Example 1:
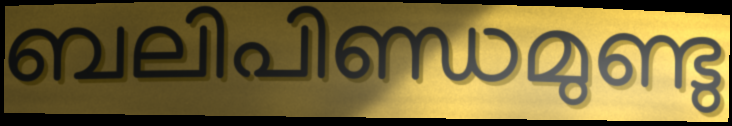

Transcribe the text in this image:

ബലിപിണ്ഡമുണ്ടു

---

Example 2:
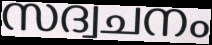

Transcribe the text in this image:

സദ്വചനം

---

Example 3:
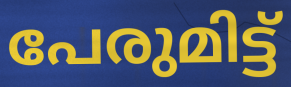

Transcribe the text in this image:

പേരുമിട്ട്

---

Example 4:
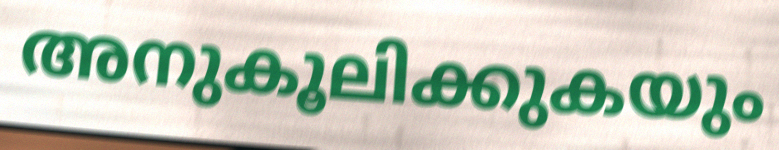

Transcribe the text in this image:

അനുകൂലിക്കുകയും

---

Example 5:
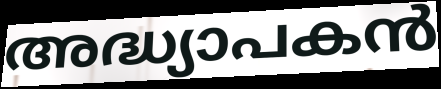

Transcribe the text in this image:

അദ്ധ്യാപകൻ